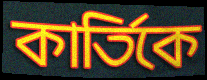
কার্তিকে